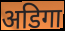
अडिगा